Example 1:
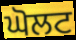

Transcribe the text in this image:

ਘੋਲਟ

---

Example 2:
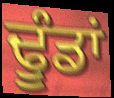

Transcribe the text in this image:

ਢੂੰਡਾਂ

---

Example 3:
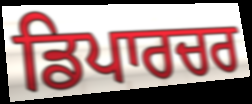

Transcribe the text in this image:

ਡਿਪਾਰਚਰ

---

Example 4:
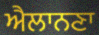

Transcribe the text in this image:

ਐਲਾਨਣਾ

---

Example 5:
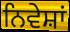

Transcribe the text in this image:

ਨਿਵੇਸ਼ਾਂ